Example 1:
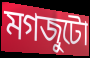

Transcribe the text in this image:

মগজুটো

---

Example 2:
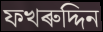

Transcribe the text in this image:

ফখৰুদ্দিন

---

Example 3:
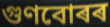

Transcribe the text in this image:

গুণবোৰৰ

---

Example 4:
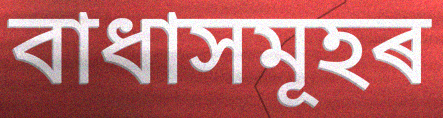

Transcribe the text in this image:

বাধাসমূহৰ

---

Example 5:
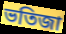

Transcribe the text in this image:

ভতিজা